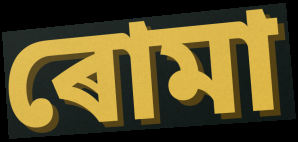
ৰোমা